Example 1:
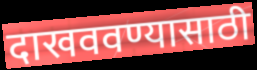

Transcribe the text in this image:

दाखववण्यासाठी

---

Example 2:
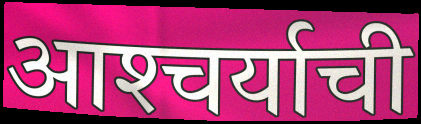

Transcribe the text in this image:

आश्‍चर्याची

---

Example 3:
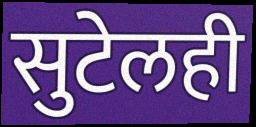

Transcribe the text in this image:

सुटेलही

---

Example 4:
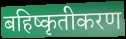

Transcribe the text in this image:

बहिष्कृतीकरण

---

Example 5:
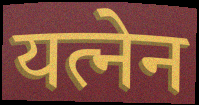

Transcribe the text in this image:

यत्‍नेन